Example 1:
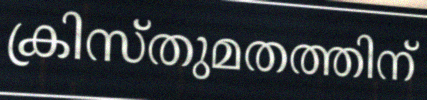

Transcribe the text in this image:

ക്രിസ്തുമതത്തിന്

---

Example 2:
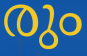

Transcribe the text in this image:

രും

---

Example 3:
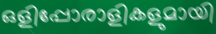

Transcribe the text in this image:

ഒളിപ്പോരാളികളുമായി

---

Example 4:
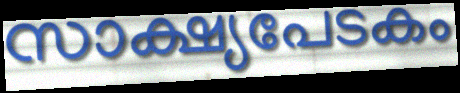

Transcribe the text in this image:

സാക്ഷ്യപേടകം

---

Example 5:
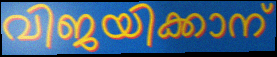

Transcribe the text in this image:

വിജയിക്കാന്